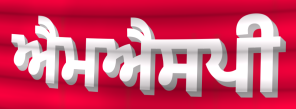
ਐਮਐਸਪੀ